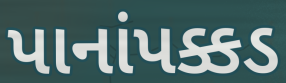
પાનાંપક્કડ